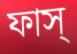
ফাস্